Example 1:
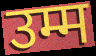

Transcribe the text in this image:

उम्म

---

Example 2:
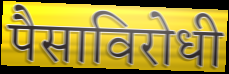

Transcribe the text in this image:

पैसाविरोधी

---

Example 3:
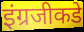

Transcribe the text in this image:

इंग्रजीकडे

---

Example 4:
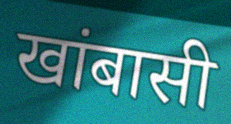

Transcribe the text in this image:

खांबासी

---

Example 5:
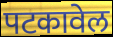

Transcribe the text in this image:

पटकावेल